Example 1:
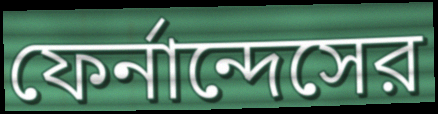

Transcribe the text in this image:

ফের্নান্দেসের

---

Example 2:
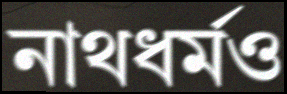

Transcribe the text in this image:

নাথধর্মও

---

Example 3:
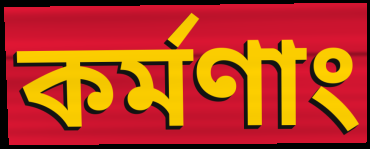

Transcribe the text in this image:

কর্মণাং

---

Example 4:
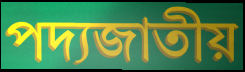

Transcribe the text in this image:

পদ্যজাতীয়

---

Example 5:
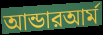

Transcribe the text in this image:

আন্ডারআর্ম